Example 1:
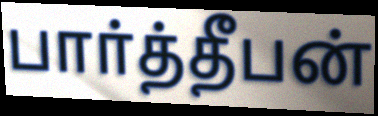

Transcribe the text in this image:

பார்த்தீபன்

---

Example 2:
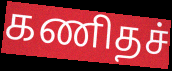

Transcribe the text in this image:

கணிதச்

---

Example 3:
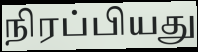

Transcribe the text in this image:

நிரப்பியது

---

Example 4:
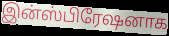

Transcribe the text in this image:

இன்ஸ்பிரேஷனாக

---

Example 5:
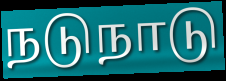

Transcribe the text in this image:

நடுநாடு